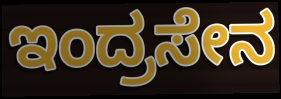
ಇಂದ್ರಸೇನ